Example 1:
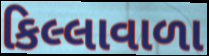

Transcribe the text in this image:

કિલ્લાવાળા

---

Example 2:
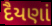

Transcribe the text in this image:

દૈયણાં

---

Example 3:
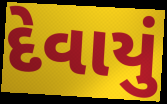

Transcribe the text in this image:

દેવાયું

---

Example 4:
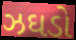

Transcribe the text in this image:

ઝઘડો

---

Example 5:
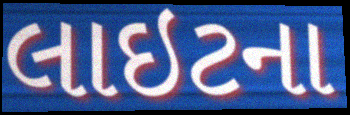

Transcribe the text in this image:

લાઇટના